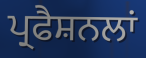
ਪ੍ਰਫੈਸ਼ਨਲਾਂ